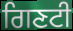
ਗਿਣਟੀ